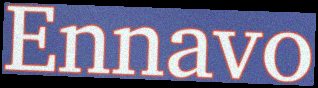
Ennavo